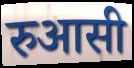
रुआसी